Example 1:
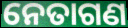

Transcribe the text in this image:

ନେତାଗଣ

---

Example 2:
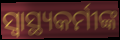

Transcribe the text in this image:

ସ୍ବାସ୍ଥ୍ୟକର୍ମୀଙ୍କ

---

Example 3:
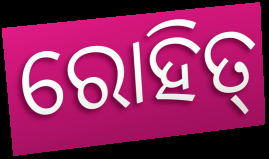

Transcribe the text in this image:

ରୋହିତ୍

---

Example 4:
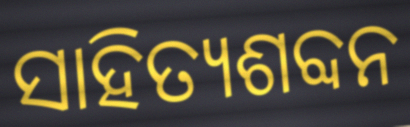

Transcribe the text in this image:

ସାହିତ୍ୟଶବ୍ଦନ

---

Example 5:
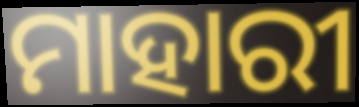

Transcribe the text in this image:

ମାହାରୀ